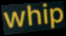
whip